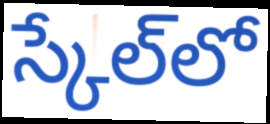
స్కేల్‌లో